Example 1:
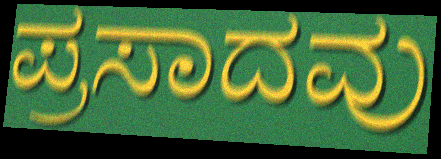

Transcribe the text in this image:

ಪ್ರಸಾದವು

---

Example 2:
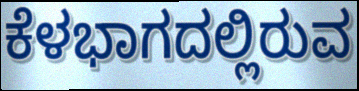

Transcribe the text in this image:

ಕೆಳಭಾಗದಲ್ಲಿರುವ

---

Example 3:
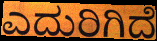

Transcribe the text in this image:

ಎದುರಿಗಿದೆ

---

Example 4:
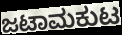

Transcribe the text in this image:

ಜಟಾಮಕುಟ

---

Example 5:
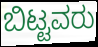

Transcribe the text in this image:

ಬಿಟ್ಟವರು